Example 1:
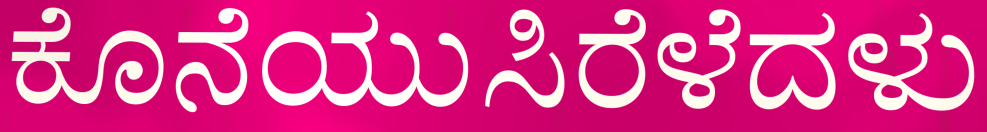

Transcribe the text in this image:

ಕೊನೆಯುಸಿರೆಳೆದಳು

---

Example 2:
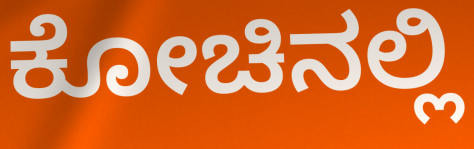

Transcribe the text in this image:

ಕೋಚಿನಲ್ಲಿ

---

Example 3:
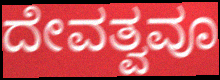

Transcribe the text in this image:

ದೇವತ್ವವೂ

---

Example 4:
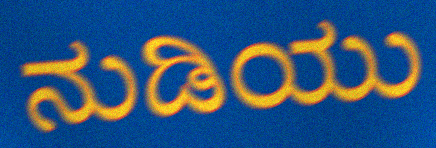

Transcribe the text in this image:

ನುಡಿಯು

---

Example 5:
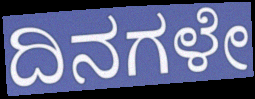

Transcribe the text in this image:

ದಿನಗಳೇ